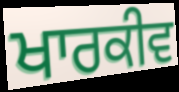
ਖਾਰਕੀਵ